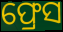
ଫ୍ରେସ